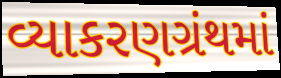
વ્યાકરણગ્રંથમાં